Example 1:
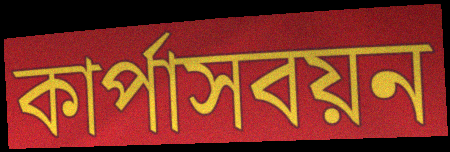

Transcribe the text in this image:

কার্পাসবয়ন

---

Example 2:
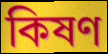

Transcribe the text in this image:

কিষণ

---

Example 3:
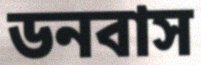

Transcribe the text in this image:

ডনবাস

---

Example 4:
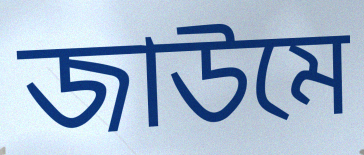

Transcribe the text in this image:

জাউমে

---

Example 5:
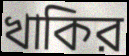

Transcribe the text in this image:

খাকির